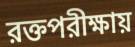
রক্তপরীক্ষায়